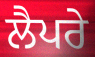
ਲੈਪਰੇ